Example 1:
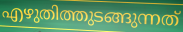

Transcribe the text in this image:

എഴുതിത്തുടങ്ങുന്നത്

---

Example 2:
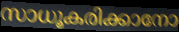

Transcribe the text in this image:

സാധൂകരിക്കാനോ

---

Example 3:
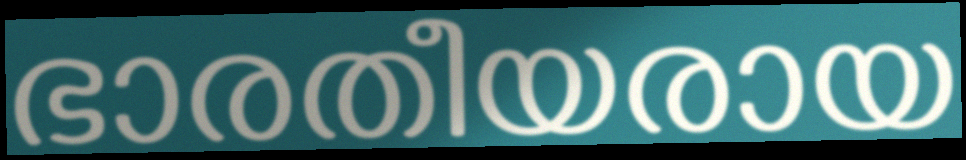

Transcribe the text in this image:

ഭാരതീയരായ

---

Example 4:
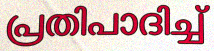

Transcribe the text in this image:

പ്രതിപാദിച്ച്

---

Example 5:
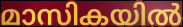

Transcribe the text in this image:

മാസികയിൽ